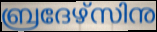
ബ്രദേഴ്സിനു